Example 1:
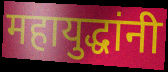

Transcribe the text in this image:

महायुद्धांनी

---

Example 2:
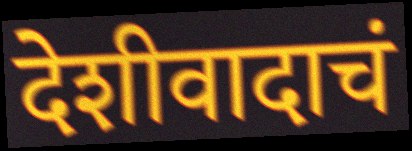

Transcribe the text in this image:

देशीवादाचं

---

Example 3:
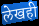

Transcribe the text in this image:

लेखही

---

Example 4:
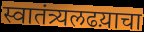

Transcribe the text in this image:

स्वातंत्र्यलढय़ाचा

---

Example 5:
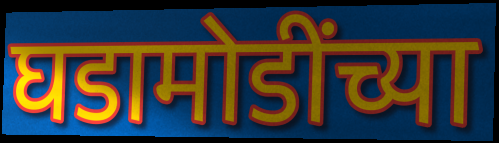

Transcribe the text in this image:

घडामोडींच्या